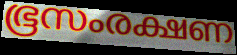
ഭൂസംരക്ഷണ